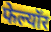
फेल्यॉर